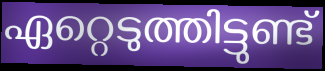
ഏറ്റെടുത്തിട്ടുണ്ട്